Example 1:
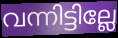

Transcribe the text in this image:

വന്നിട്ടില്ലേ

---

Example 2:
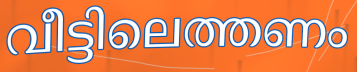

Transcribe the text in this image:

വീട്ടിലെത്തണം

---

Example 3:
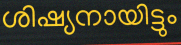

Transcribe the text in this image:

ശിഷ്യനായിട്ടും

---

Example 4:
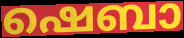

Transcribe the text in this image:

ഷെബാ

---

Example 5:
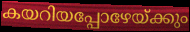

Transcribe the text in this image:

കയറിയപ്പോഴേയ്ക്കും